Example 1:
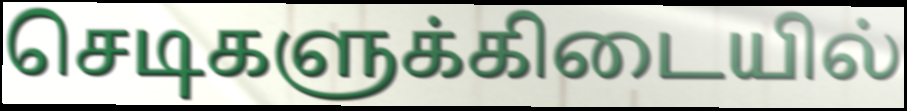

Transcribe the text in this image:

செடிகளுக்கிடையில்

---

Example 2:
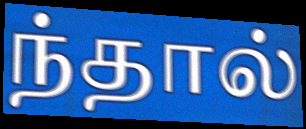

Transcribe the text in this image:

ந்தால்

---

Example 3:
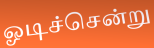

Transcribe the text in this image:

ஓடிச்சென்று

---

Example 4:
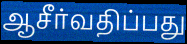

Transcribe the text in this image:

ஆசீர்வதிப்பது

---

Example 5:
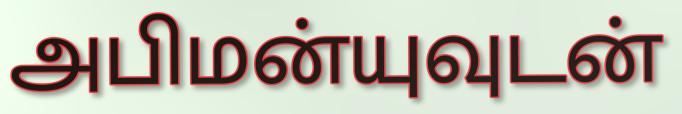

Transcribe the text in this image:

அபிமன்யுவுடன்